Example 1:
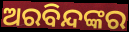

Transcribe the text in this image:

ଅରବିନ୍ଦଙ୍କର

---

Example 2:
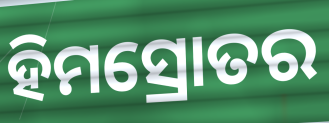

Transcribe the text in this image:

ହିମସ୍ରୋତର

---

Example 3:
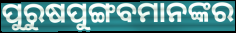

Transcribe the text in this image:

ପୁରୁଷପୁଙ୍ଗବମାନଙ୍କର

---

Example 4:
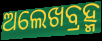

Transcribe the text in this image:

ଅଲେଖବ୍ରହ୍ମ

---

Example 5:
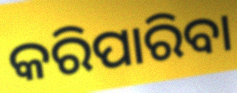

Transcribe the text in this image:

କରିପାରିବା